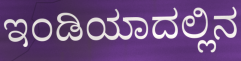
ಇಂಡಿಯಾದಲ್ಲಿನ